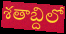
శతాబ్దిలో